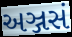
અઞ્જસં